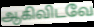
ஆகிவிடவே